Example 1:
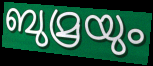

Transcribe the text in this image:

ബുമ്രയും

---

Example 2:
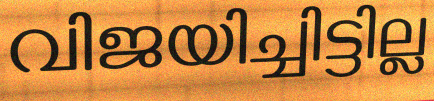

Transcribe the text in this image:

വിജയിച്ചിട്ടില്ല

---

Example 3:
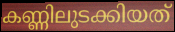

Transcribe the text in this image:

കണ്ണിലുടക്കിയത്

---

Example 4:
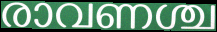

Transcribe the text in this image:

രാവണശ്ച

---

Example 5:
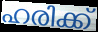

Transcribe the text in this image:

ഹരിക്ക്